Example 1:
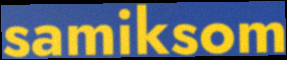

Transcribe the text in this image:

samiksom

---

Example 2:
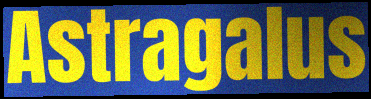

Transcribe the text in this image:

Astragalus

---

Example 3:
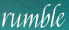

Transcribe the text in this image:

rumble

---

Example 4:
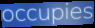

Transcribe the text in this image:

occupies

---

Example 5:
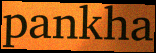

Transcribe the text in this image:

pankha